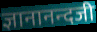
ज्ञानानन्दजी